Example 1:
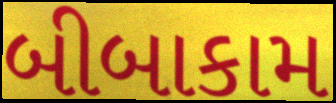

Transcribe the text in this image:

બીબાકામ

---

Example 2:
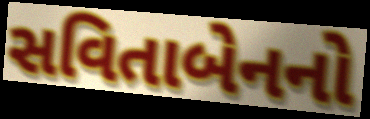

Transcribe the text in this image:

સવિતાબેનનો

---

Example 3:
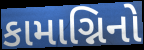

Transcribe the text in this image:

કામાગ્નિનો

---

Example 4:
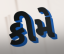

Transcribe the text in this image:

કીમે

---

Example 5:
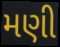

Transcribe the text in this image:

મણી